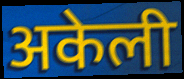
अकेली